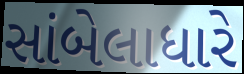
સાંબેલાધારે